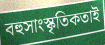
বহুসাংস্কৃতিকতাই